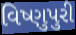
વિષ્ણુપુરી